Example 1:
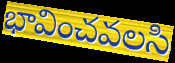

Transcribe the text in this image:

భావించవలసి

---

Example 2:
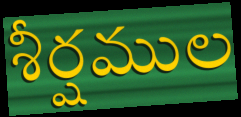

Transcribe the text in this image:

శీర్షముల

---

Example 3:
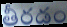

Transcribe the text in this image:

తీరడం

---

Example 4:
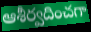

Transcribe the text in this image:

ఆశీర్వదించగా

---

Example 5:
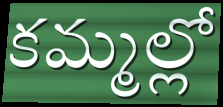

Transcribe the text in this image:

కమ్మల్లో